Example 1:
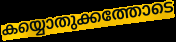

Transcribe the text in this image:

കയ്യൊതുക്കത്തോടെ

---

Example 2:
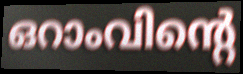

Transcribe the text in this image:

ഒറാംവിന്റെ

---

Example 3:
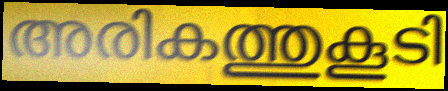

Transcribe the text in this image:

അരികത്തുകൂടി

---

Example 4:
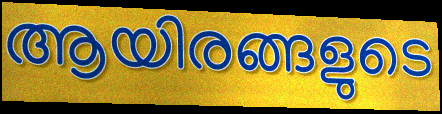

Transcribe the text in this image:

ആയിരങ്ങളുടെ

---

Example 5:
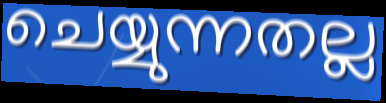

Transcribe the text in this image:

ചെയ്യുന്നതല്ല